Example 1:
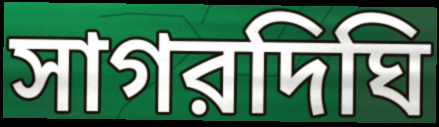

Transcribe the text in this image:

সাগরদিঘি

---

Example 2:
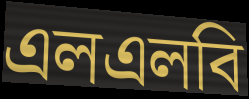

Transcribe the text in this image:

এলএলবি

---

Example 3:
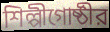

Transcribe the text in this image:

শিল্পীগোষ্ঠীর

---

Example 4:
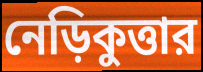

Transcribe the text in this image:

নেড়িকুত্তার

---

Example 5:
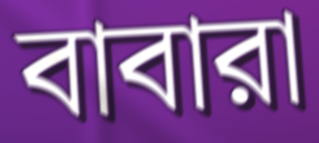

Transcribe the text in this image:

বাবারা